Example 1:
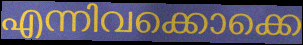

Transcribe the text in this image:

എന്നിവക്കൊക്കെ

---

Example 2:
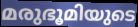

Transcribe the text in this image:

മരുഭൂമിയുടെ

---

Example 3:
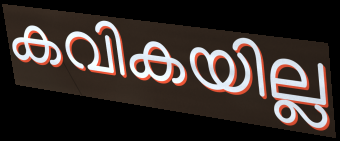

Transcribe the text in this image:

കവികയില്ല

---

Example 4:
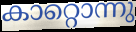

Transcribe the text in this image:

കാറ്റൊന്നു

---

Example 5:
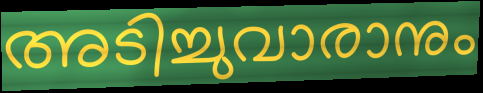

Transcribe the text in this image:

അടിച്ചുവാരാനും